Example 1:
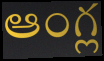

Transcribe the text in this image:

ఆంగ్ల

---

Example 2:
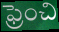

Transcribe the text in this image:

ఫ్రెంచి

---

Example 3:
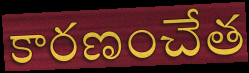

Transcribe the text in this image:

కారణంచేత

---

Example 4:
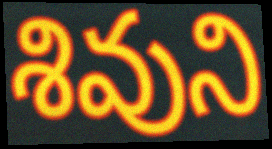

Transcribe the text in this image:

శివుని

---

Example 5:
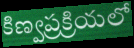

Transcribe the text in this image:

కిణ్వప్రక్రియలో